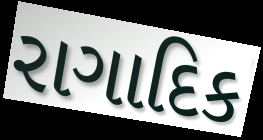
રાગાદિક